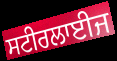
ਸਟੀਰਲਾਈਜ